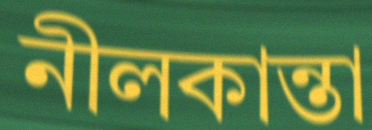
নীলকান্তা